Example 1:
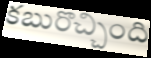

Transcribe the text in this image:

కబురొచ్చింది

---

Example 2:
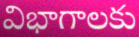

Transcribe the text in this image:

విభాగాలకు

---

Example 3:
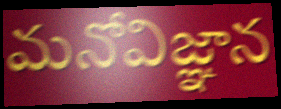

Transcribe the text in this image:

మనోవిజ్ఞాన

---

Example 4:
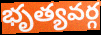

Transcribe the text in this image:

భృత్యవర్గ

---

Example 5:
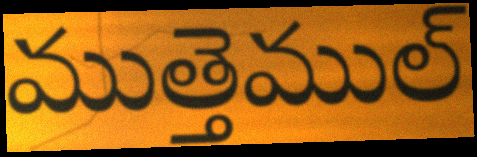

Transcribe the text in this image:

ముత్తెముల్